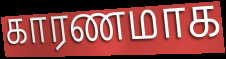
காரணமாக